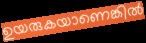
ഉയരുകയാണെങ്കിൽ